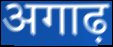
अगाढ़